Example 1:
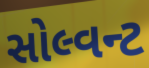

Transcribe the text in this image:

સોલ્વન્ટ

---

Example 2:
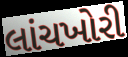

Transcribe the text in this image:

લાંચખોરી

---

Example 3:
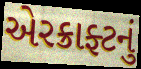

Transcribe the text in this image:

એરક્રાફ્ટનું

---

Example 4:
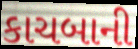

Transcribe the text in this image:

કાચબાની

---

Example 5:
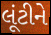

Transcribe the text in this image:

લૂંટીને